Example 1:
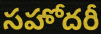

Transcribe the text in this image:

సహోదరీ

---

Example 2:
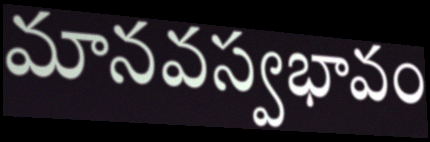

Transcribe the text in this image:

మానవస్వభావం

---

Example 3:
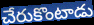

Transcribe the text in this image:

చేరుకొంటాడు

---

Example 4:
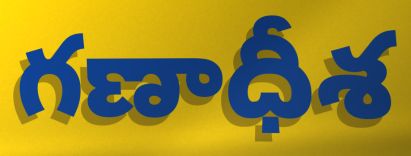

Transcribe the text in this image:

గణాధీశ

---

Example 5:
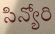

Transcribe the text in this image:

సిన్యోరి